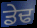
ਡੇਢ